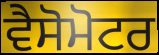
ਵੈਸੋਮੋਟਰ